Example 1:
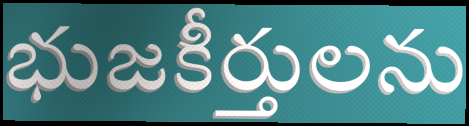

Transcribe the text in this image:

భుజకీర్తులను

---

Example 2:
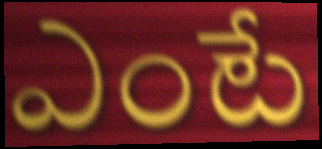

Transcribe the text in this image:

ఎంటే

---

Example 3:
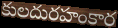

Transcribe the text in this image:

కులదురహంకార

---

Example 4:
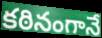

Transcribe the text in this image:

కఠినంగానే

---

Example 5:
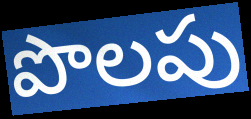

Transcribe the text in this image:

పొలపు